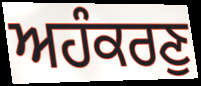
ਅਹੰਕਰਣੁ